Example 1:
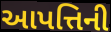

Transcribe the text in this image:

આપત્તિની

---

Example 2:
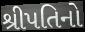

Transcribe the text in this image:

શ્રીપતિનો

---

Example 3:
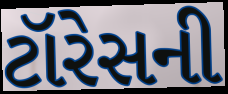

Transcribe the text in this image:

ટૉરેસની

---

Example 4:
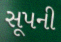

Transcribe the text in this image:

સૂપની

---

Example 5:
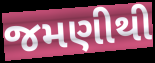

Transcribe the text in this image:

જમણીથી